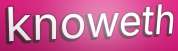
knoweth